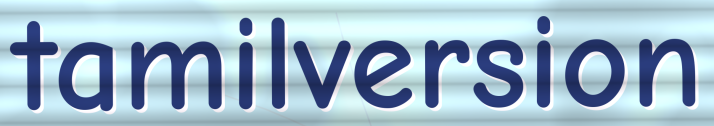
tamilversion